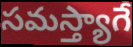
సమస్త్యాగే